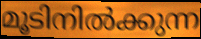
മൂടിനിൽക്കുന്ന